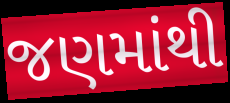
જણમાંથી